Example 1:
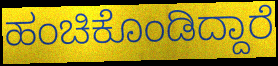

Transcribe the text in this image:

ಹಂಚಿಕೊಂಡಿದ್ದಾರೆ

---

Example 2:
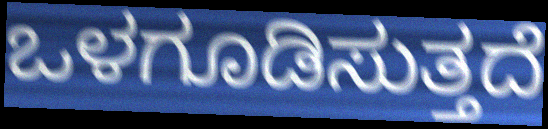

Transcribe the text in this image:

ಒಳಗೂಡಿಸುತ್ತದೆ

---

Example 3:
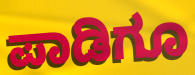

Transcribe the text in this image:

ಪಾಡಿಗೂ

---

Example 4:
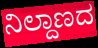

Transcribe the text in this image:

ನಿಲ್ದಾಣದ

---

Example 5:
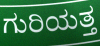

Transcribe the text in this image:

ಗುರಿಯತ್ತ